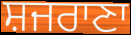
ਸ਼ਜਰਾਣਾ